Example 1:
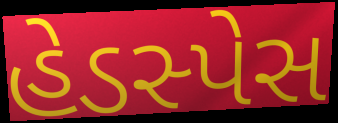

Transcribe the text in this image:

હેડસ્પેસ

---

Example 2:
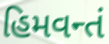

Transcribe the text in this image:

હિમવન્તં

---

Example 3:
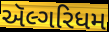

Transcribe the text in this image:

ઍલ્ગરિધમ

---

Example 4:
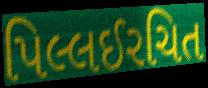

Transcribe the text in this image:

પિલ્લઈરચિત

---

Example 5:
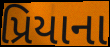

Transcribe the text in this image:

પ્રિયાના